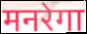
मनरेगा